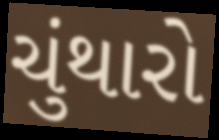
ચુંથારો